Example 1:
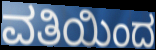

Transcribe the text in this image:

ವತಿಯಿಂದ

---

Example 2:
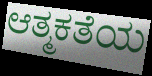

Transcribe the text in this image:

ಆತ್ಮಕತೆಯ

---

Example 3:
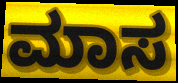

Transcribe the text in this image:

ಮಾಸ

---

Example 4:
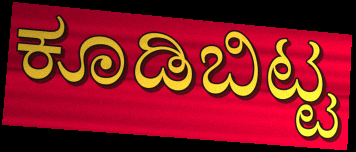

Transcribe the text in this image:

ಕೂಡಿಬಿಟ್ಟ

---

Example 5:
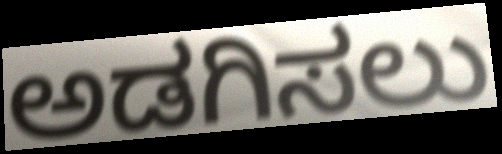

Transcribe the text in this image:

ಅಡಗಿಸಲು